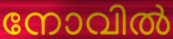
നോവിൽ